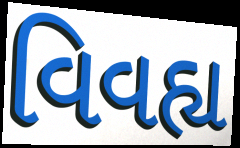
વિવહ્ય